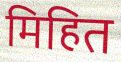
मिहित